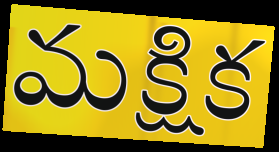
మక్షిక